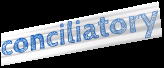
conciliatory